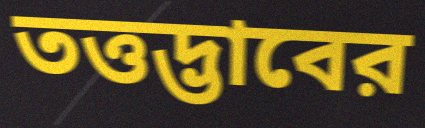
তত্তদ্ভাবের